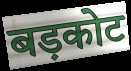
बड़कोट